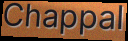
Chappal